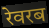
रेवरब